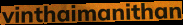
vinthaimanithan